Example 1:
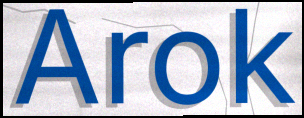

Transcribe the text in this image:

Arok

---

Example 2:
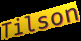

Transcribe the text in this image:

Tilson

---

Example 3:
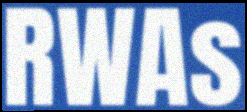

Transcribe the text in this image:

RWAs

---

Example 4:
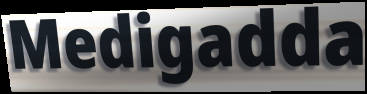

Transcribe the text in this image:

Medigadda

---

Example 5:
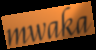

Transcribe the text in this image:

mwaka